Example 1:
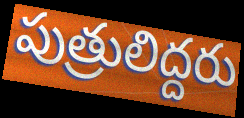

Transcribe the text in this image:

పుత్రులిద్దరు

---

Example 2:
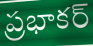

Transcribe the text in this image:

ప్రభాకర్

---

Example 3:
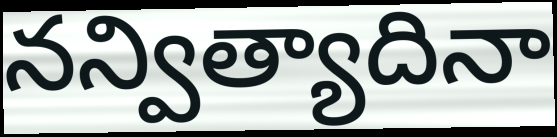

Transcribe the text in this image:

నన్విత్యాదినా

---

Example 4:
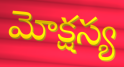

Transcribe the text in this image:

మోక్షస్య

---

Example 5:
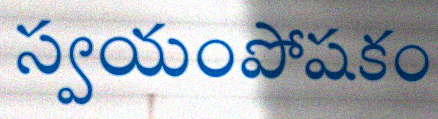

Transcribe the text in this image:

స్వయంపోషకం